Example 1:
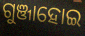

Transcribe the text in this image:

ଗୁଞ୍ଜାହୋଇ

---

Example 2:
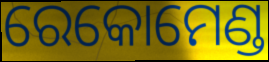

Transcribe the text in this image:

ରେକୋମେଣ୍ଡ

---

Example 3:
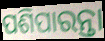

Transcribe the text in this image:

ପଶିପାରନ୍ତା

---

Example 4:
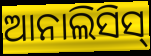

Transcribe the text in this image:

ଆନାଲିସିସ୍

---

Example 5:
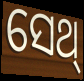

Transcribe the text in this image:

ସେଥ୍